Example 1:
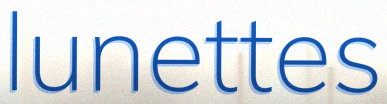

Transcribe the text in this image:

lunettes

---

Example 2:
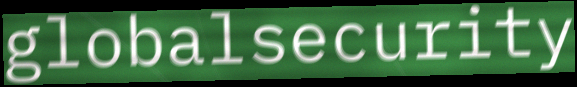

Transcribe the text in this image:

globalsecurity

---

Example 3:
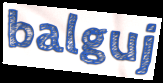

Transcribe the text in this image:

balguj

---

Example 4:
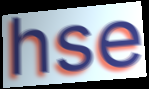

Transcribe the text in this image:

hse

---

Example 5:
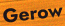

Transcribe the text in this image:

Gerow